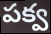
పక్వ